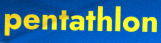
pentathlon